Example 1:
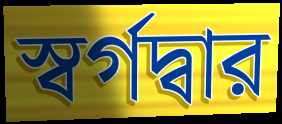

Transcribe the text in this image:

স্বর্গদ্বার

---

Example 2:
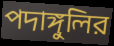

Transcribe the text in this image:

পদাঙ্গুলির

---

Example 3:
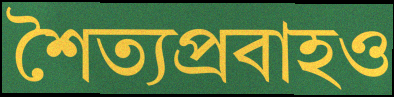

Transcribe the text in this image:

শৈত্যপ্রবাহও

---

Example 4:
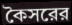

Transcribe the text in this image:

কৈসরের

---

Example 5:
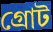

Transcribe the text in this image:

গ্রোট